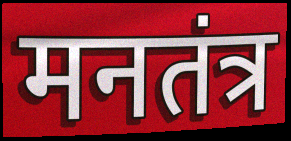
मनतंत्र